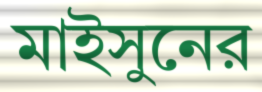
মাইসুনের